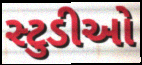
સ્ટુડીઓ